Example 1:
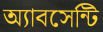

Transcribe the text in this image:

অ্যাবসেন্টি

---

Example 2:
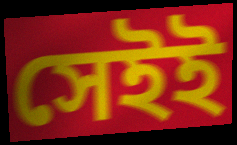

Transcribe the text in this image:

সেইই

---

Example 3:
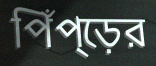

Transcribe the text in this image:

পিঁপ্‌ড়ের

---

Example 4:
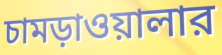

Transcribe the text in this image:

চামড়াওয়ালার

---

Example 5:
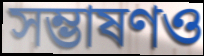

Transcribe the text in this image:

সম্ভাষণও